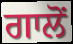
ਗਾਲੋਂ